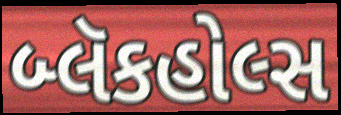
બ્લૅકહોલ્સ